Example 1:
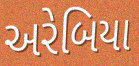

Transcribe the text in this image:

અરેબિયા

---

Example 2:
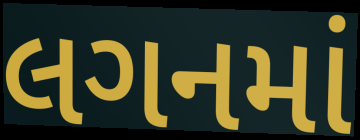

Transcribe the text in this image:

લગનમાં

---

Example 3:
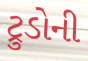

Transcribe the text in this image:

ટ્રુડોની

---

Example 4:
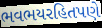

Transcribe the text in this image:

ભવભયરહિતપણે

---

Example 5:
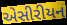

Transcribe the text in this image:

એસીરીયન